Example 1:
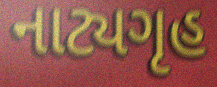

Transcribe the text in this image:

નાટ્યગૃહ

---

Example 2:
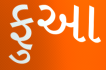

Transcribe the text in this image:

ફુઆ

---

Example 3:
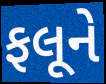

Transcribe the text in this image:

ફલૂને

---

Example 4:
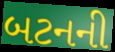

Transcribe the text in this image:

બટનની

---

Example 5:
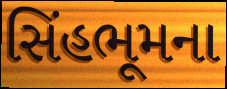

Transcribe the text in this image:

સિંહભૂમના